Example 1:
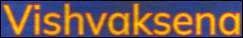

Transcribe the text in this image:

Vishvaksena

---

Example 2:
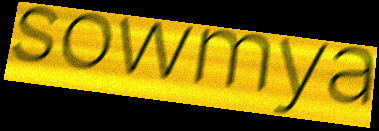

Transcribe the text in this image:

sowmya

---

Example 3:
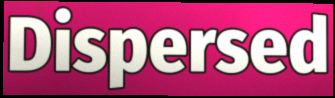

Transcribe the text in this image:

Dispersed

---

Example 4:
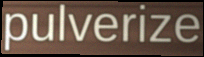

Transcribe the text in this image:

pulverize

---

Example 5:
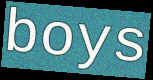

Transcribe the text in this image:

boys